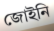
জোইনি